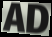
AD